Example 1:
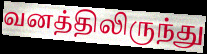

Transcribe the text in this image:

வனத்திலிருந்து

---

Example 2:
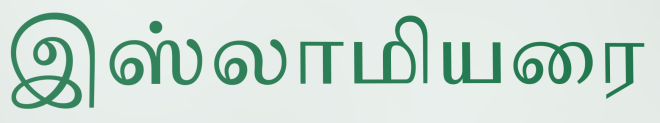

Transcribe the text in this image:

இஸ்லாமியரை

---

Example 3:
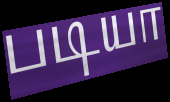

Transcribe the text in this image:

படியா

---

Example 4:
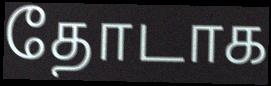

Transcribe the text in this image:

தோடாக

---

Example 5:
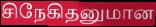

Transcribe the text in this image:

சிநேகிதனுமான